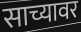
साच्यावर